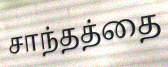
சாந்தத்தை